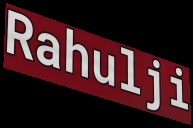
Rahulji